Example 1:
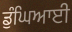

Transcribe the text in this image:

ਡੁੰਘਿਆਈ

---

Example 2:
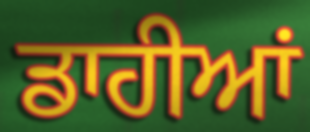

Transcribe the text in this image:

ਡਾਹੀਆਂ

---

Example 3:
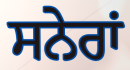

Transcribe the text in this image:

ਸਨੇਰਾਂ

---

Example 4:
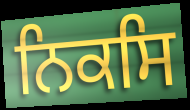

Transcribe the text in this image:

ਨਿਕਸਿ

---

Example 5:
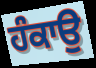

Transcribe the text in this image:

ਹੰਕਾਉ